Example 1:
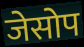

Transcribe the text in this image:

जेसोप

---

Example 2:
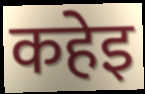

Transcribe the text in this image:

कहेइ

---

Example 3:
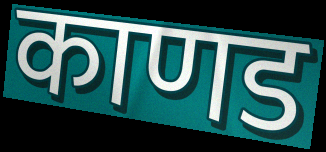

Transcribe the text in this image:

काणड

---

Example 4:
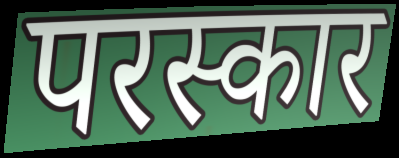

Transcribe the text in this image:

परस्कार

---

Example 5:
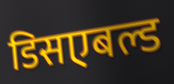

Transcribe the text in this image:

डिसएबल्ड